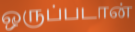
ஒருப்படான்